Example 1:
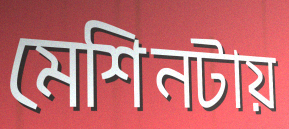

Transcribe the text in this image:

মেশিনটায়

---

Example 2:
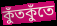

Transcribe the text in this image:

কুঁতকুঁতে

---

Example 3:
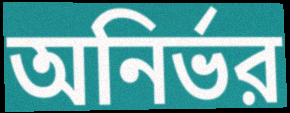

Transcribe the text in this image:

অনির্ভর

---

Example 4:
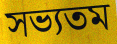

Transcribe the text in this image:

সভ্যতম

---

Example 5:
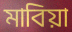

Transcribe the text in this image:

মাবিয়া